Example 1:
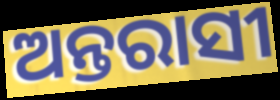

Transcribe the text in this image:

ଅନ୍ତରାସୀ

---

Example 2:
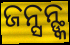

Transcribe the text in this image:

ଜନ୍ସନ୍ଙ୍କ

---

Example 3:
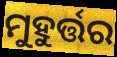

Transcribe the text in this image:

ମୁହୁର୍ତ୍ତର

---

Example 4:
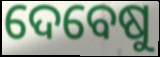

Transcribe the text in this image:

ଦେବେଷୁ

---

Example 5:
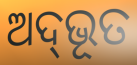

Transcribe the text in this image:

ଅଦ୍‍ଭୂତ